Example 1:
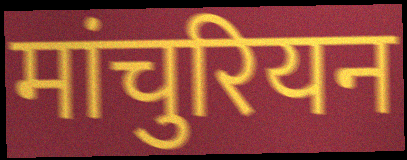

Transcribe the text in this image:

मांचुरियन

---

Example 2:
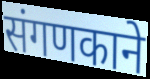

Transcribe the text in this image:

संगणकाने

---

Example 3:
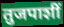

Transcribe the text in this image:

तुजपाशीं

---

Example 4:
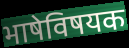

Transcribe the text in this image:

भाषेविषयक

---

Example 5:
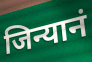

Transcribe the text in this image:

जिन्यानं